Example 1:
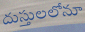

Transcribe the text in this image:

దుస్తులలోనూ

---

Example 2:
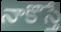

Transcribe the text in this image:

నాకొస్తే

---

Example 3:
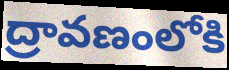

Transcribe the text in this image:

ద్రావణంలోకి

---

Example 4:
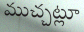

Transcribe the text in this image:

ముచ్చట్లూ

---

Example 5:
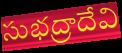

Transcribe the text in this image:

సుభద్రాదేవి